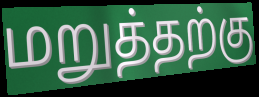
மறுத்தற்கு